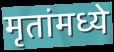
मृतांमध्ये